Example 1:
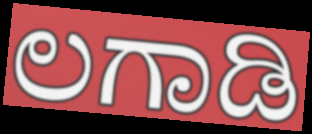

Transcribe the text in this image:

ಲಗಾಡಿ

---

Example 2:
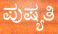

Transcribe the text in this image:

ಪುಷ್ಯತಿ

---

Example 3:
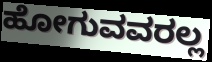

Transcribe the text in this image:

ಹೋಗುವವರಲ್ಲ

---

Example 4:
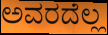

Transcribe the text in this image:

ಅವರದೆಲ್ಲ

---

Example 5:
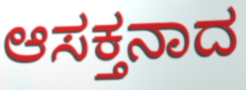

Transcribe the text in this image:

ಆಸಕ್ತನಾದ